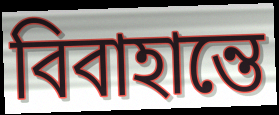
বিবাহান্তে